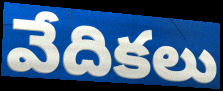
వేదికలు